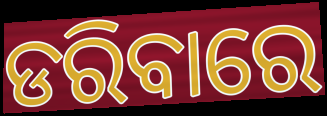
ଡରିବାରେ